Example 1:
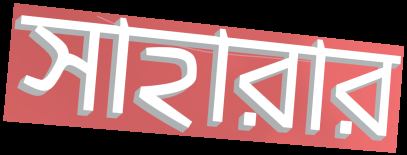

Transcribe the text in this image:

সাহারার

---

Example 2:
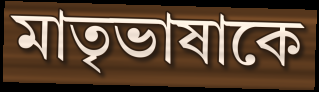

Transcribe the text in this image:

মাতৃভাষাকে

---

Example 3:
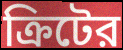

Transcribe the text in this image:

ক্রিটের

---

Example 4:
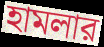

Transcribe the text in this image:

হামলার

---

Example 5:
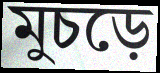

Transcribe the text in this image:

মুচড়ে